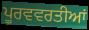
ਪੂਰਵਵਰਤੀਆਂ